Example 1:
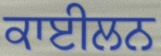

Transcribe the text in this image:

ਕਾਈਲਨ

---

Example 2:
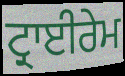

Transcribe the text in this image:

ਟ੍ਰਾਈਰੇਮ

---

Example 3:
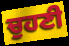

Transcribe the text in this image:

ਚੁਹਣੀ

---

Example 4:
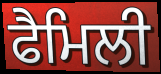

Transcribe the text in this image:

ਫੈਮਿਲੀ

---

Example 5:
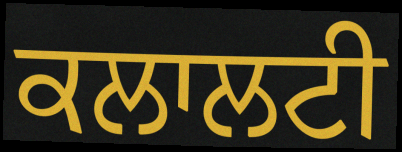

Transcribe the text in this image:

ਕਲਾਲਟੀ